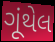
ગૂંથેલ